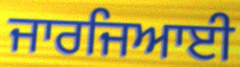
ਜਾਰਜਿਆਈ